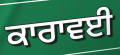
ਕਾਰਾਵਈ